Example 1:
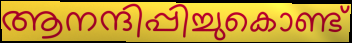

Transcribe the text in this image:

ആനന്ദിപ്പിച്ചുകൊണ്ട്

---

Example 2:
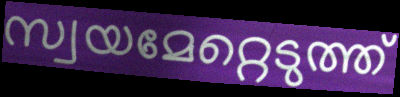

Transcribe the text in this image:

സ്വയമേറ്റെടുത്ത്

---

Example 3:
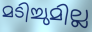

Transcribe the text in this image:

മടിച്ചുമില്ല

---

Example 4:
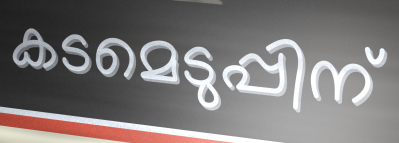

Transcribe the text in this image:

കടമെടുപ്പിന്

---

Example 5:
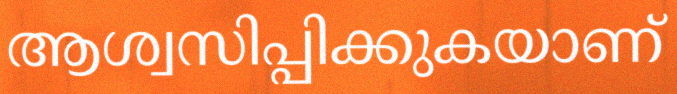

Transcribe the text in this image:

ആശ്വസിപ്പിക്കുകയാണ്